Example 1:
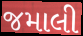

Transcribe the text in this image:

જમાલી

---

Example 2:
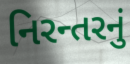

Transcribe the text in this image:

નિરન્તરનું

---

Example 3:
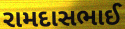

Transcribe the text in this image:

રામદાસભાઈ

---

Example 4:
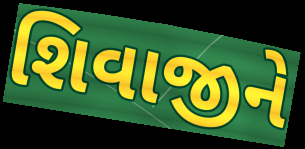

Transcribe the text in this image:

શિવાજીને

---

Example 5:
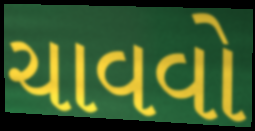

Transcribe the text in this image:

ચાવવો